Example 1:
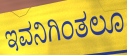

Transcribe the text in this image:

ಇವನಿಗಿಂತಲೂ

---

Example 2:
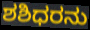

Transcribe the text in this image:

ಶಶಿಧರನು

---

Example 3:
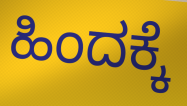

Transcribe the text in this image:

ಹಿಂದಕ್ಕೆ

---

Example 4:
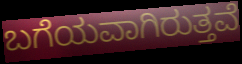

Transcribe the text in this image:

ಬಗೆಯವಾಗಿರುತ್ತವೆ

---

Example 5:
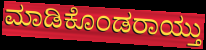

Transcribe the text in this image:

ಮಾಡಿಕೊಂಡರಾಯ್ತು